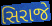
સિરાજે